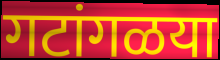
गटांगळया